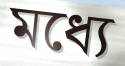
মধ্যে